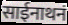
साईनाथनं